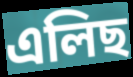
এলিছ